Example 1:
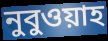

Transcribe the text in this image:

নুবুওয়াহ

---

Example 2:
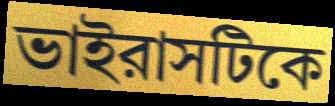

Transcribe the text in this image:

ভাইরাসটিকে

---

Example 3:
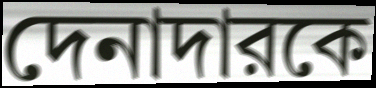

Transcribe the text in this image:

দেনাদারকে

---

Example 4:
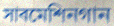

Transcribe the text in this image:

সাবমেশিনগান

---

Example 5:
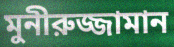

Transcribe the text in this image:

মুনীরুজ্জামান